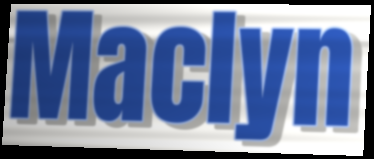
Maclyn